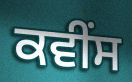
ਕਵੀਂਸ